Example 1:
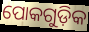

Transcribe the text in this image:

ପୋକଗୁଡ଼ିକ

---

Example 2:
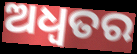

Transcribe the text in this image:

ଅଧ୍ଵତର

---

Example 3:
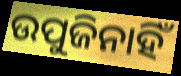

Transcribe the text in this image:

ଉପୁଜିନାହିଁ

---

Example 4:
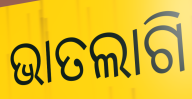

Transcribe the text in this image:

ଭାତଲାଗି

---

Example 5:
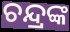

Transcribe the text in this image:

ଚନ୍ଦ୍ରଙ୍କ